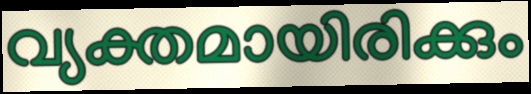
വ്യക്തമായിരിക്കും